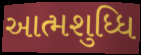
આત્મશુધ્ધિ